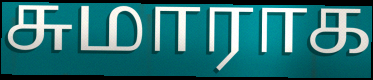
சுமாராக